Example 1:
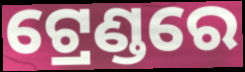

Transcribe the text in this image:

ଟ୍ରେଣ୍ଡରେ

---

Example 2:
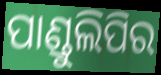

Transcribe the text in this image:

ପାଣ୍ଡୁଲିପିର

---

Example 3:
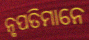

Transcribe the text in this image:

ନୃପତିମାନେ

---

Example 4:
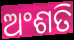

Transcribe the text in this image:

ଅଂଶତି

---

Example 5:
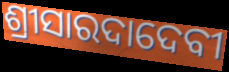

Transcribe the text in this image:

ଶ୍ରୀସାରଦାଦେବୀ